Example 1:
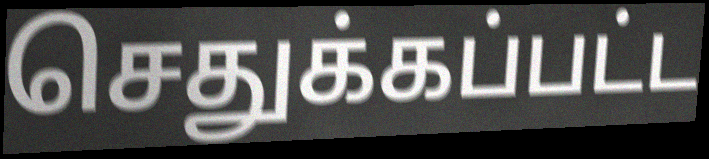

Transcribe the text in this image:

செதுக்கப்பட்ட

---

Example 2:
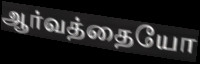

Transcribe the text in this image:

ஆர்வத்தையோ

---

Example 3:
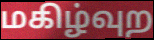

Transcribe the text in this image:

மகிழ்வுற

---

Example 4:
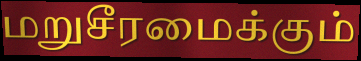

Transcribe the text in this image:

மறுசீரமைக்கும்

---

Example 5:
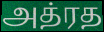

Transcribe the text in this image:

அத்ரத